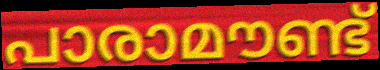
പാരാമൗണ്ട്